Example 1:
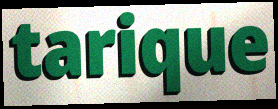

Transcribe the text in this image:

tarique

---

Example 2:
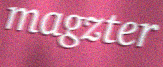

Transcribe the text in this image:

magzter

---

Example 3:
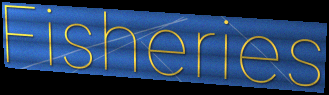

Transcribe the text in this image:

Fisheries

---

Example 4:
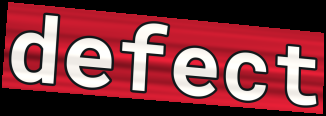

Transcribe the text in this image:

defect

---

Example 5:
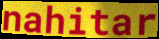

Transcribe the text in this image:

nahitar